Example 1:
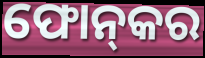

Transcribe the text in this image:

ଫୋନ୍‌କର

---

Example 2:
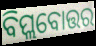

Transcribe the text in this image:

ବିପ୍ଲବୋତ୍ତର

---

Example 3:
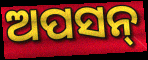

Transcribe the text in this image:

ଅପସନ୍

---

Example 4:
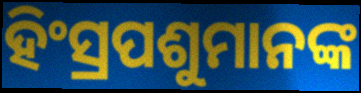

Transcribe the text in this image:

ହିଂସ୍ରପଶୁମାନଙ୍କ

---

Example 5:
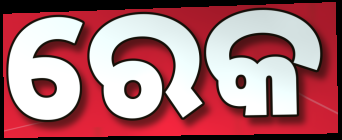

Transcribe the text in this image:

ରେକ